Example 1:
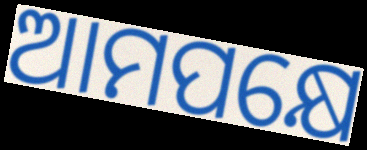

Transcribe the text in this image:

ଆମପକ୍ଷେ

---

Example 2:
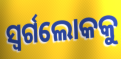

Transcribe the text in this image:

ସ୍ବର୍ଗଲୋକକୁ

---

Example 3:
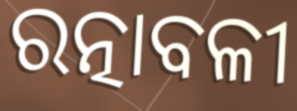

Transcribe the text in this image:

ରତ୍ନାବଳୀ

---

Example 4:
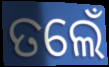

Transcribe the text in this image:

ତଲେଁ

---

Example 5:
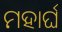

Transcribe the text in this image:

ମହାର୍ଘ